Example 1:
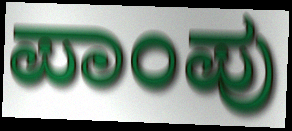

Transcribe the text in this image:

ಪಾಂಪು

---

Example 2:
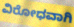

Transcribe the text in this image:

ವಿರೋಧವಾಗಿ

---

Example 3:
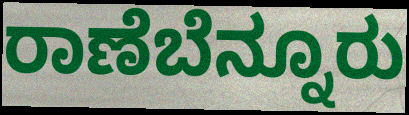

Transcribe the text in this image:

ರಾಣೆಬೆನ್ನೂರು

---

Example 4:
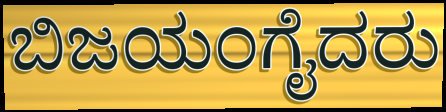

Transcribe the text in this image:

ಬಿಜಯಂಗೈದರು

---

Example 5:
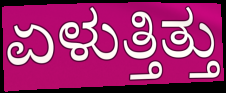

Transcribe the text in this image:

ಏಳುತ್ತಿತ್ತು